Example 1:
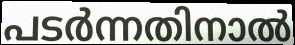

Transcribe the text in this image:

പടർന്നതിനാൽ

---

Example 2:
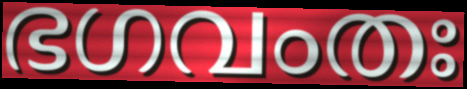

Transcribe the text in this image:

ഭഗവംതഃ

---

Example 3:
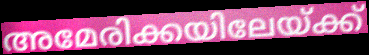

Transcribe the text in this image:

അമേരിക്കയിലേയ്ക്ക്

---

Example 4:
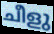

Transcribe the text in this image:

ചീളു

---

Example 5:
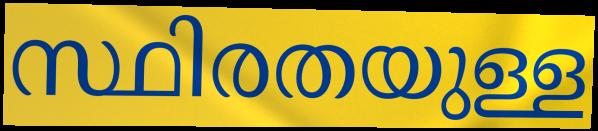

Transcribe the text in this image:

സ്ഥിരതയുള്ള